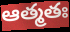
ఆత్మతః